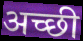
अच्‍छी